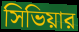
সিভিয়ার